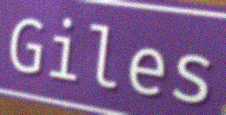
Giles